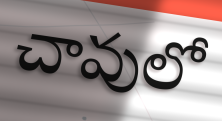
చావులో